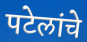
पटेलांचे